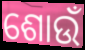
ଶୋଉଁ